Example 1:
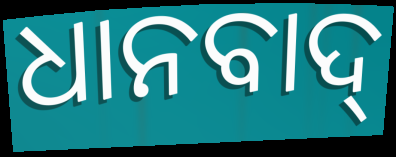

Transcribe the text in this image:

ଧାନବାଦ୍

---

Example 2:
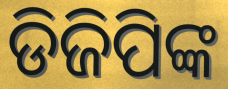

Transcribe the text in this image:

ଡିଜିପିଙ୍କ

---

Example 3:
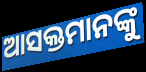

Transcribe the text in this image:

ଆସକ୍ତମାନଙ୍କୁ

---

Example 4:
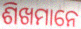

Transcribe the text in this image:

ଶିଖମାନେ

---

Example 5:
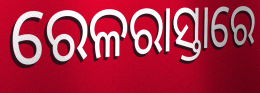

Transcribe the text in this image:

ରେଳରାସ୍ତାରେ